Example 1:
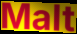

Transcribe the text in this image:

Malt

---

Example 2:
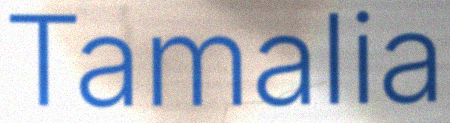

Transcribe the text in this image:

Tamalia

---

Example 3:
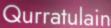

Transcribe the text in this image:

Qurratulain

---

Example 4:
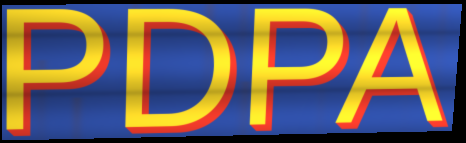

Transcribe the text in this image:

PDPA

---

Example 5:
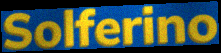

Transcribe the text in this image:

Solferino